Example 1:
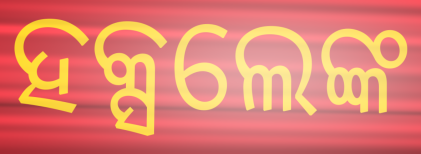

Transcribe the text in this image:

ହକ୍ସଲେଙ୍କ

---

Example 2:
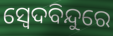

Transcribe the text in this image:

ସ୍ୱେଦବିନ୍ଦୁରେ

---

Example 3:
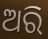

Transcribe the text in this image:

ଅରି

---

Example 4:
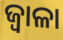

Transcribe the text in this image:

ଜ୍ୱାଳା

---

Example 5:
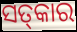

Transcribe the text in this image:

ସତ୍‌କାର